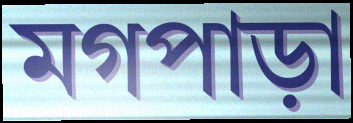
মগপাড়া